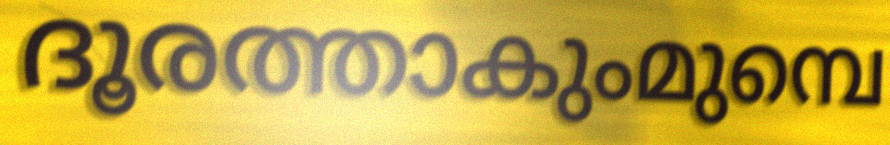
ദൂരത്താകുംമുമ്പെ